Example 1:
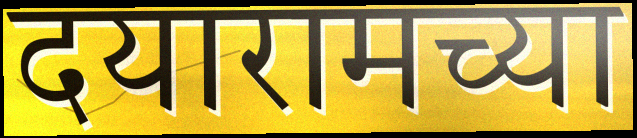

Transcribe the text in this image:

दयारामच्या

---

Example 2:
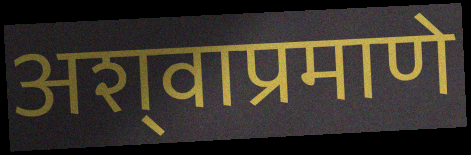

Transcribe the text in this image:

अश्वाप्रमाणे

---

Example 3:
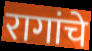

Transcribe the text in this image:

रागांचे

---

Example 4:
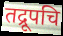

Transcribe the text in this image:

तद्रूपचि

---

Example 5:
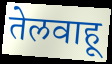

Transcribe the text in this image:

तेलवाहू